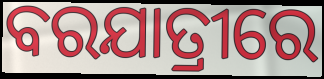
ବରଯାତ୍ରୀରେ